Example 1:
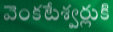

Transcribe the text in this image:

వెంకటేశ్వర్లుకి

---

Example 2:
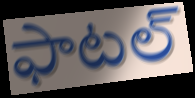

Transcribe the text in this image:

ఫాటల్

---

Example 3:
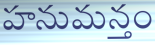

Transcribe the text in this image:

హనుమన్తం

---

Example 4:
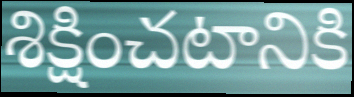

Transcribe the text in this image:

శిక్షించటానికి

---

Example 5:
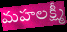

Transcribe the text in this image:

మహలక్ష్మీ